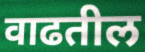
वाढतील